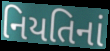
નિયતિનાં